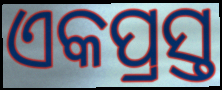
ଏକପ୍ରସ୍ତ